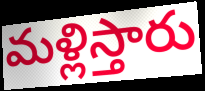
మళ్లిస్తారు